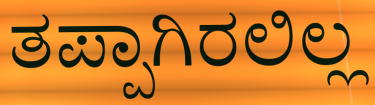
ತಪ್ಪಾಗಿರಲಿಲ್ಲ